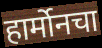
हार्मोनचा